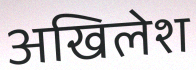
अखिलेश